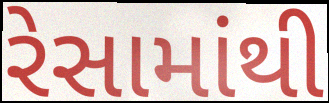
રેસામાંથી